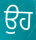
ਉਹ